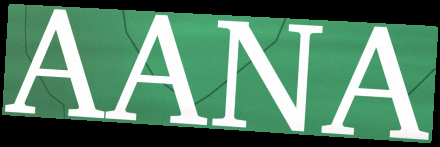
AANA